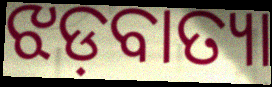
ଝଡ଼ବାତ୍ୟା